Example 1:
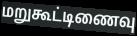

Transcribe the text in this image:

மறுகூட்டிணைவு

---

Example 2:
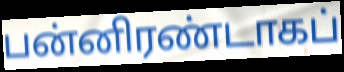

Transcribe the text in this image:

பன்னிரண்டாகப்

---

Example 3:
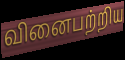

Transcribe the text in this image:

வினைபற்றிய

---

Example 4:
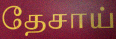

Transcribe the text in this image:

தேசாய்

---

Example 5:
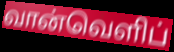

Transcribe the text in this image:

வான்வெளிப்